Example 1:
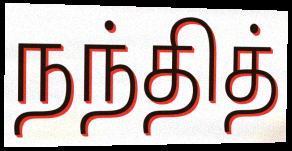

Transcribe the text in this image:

நந்தித்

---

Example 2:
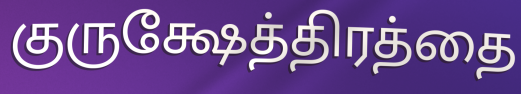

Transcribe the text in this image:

குருக்ஷேத்திரத்தை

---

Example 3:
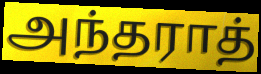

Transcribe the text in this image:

அந்தராத்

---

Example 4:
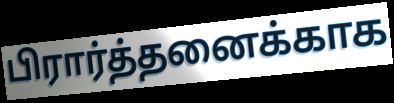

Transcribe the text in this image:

பிரார்த்தனைக்காக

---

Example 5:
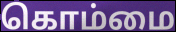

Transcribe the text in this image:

கொம்மை